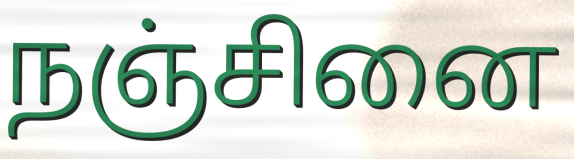
நஞ்சினை